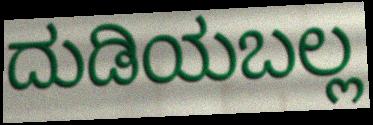
ದುಡಿಯಬಲ್ಲ